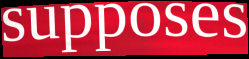
supposes